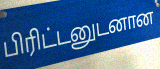
பிரிட்டனுடனான